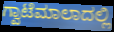
ಗ್ವಾಟೆಮಾಲಾದಲ್ಲಿ